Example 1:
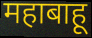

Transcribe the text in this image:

महाबाहू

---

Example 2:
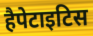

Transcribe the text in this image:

हैपेटाइटिस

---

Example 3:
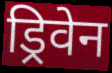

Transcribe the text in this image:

ड्रिवेन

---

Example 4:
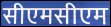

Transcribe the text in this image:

सीएमसीएम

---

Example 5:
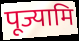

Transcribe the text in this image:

पूज्यामि